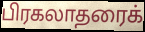
பிரகலாதரைக்